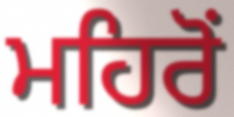
ਮਹਿਰੋਂ